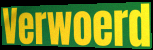
Verwoerd